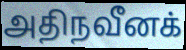
அதிநவீனக்